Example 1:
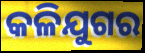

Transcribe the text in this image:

କଳିଯୁଗର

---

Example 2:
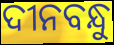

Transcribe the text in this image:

ଦୀନବନ୍ଧୁ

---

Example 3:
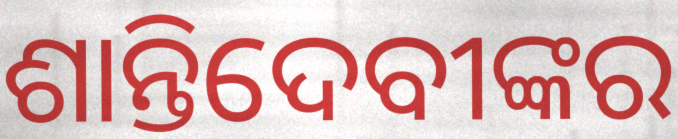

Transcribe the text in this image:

ଶାନ୍ତିଦେବୀଙ୍କର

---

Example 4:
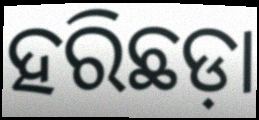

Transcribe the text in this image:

ହରିଛଡ଼ା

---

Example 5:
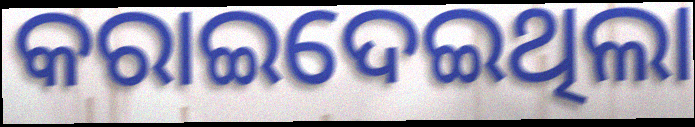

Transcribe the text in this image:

କରାଇଦେଇଥିଲା